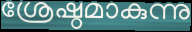
ശ്രേഷ്ഠമാകുന്നു